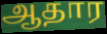
ஆதார